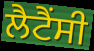
ਲੈਟੈਂਸੀ